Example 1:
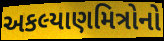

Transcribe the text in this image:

અકલ્યાણમિત્રોનો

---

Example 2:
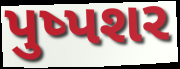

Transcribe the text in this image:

પુષ્પશર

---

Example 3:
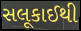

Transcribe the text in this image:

સલૂકાઈથી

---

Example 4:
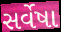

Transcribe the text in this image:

સર્વેષા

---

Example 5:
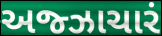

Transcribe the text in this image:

અજ્ઝાચારં